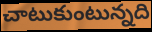
చాటుకుంటున్నది